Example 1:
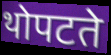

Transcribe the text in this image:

थोपटते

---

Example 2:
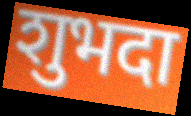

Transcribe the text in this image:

शुभदा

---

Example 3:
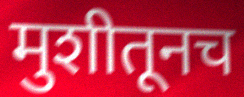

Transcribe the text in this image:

मुशीतूनच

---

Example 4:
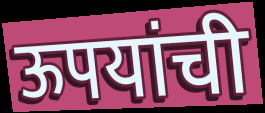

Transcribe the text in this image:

ऊपयांची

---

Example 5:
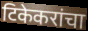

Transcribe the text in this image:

टिकेकरांचा